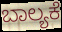
ಬಾಲ್ಯಕೆ